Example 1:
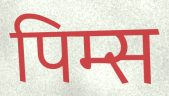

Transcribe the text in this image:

पिम्स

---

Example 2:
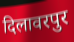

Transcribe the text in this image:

दिलावरपुर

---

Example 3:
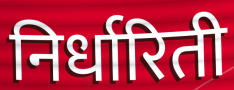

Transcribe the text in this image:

निर्धारिती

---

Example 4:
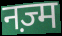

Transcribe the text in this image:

नज़्म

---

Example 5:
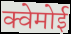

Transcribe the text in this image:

क्वेमोई